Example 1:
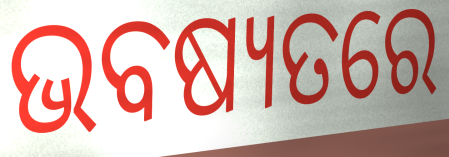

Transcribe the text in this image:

ଭବଷ୍ୟତରେ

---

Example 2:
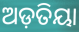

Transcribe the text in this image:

ଅଡ଼ତିୟା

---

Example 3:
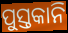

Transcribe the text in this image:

ପୁସ୍ତକାନି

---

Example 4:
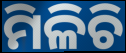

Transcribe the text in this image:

ମିଳିଚି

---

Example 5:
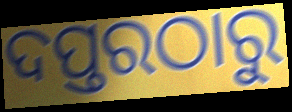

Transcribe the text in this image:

ଦପ୍ତରଠାରୁ